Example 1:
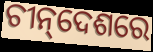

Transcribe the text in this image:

ଚୀନ୍‌ଦେଶରେ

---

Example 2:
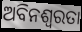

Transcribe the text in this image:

ଅବିନଶ୍ୱରତା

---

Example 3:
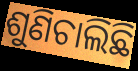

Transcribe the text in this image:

ଶୁଣିଚାଲିଛି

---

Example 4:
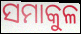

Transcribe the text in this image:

ସମାକୁଳ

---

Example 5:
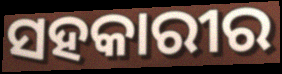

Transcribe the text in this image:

ସହକାରୀର